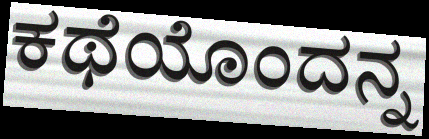
ಕಥೆಯೊಂದನ್ನ